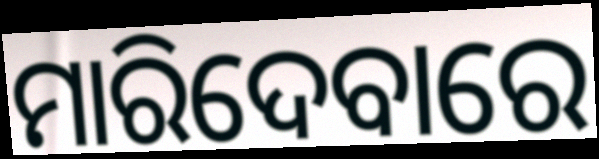
ମାରିଦେବାରେ